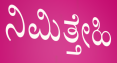
ನಿಮಿತ್ತೇಹಿ